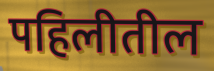
पहिलीतील